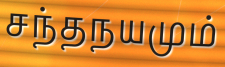
சந்தநயமும்